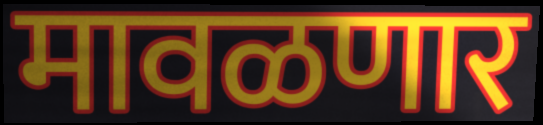
मावळणार